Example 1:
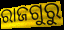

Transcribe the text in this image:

ରାଜଗୁରୁ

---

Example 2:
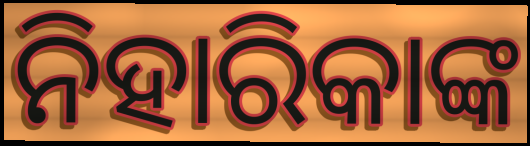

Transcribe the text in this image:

ନିହାରିକାଙ୍କ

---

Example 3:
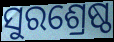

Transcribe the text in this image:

ସୁରଶ୍ରେଷ୍ଠ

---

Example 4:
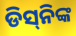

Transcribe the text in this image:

ଡିସ୍‌ନିଙ୍କ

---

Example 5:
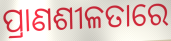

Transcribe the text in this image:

ପ୍ରାଣଶୀଳତାରେ